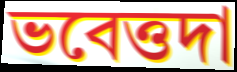
ভবেত্তদা